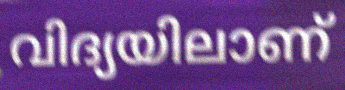
വിദ്യയിലാണ്